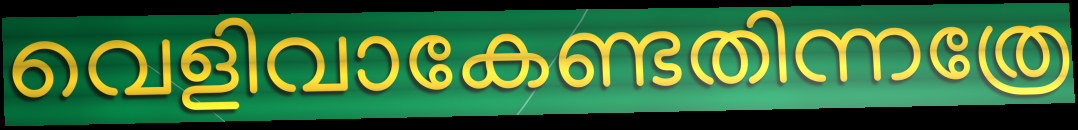
വെളിവാകേണ്ടതിന്നത്രേ